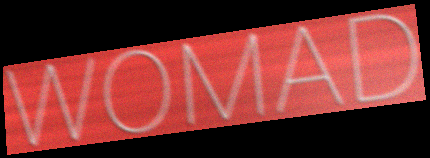
WOMAD